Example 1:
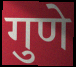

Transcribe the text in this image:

गुणे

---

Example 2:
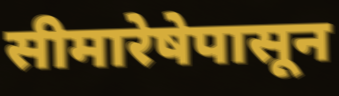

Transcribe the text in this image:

सीमारेषेपासून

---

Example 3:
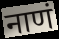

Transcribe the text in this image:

नाणं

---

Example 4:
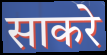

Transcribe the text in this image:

साकरे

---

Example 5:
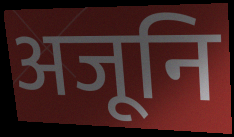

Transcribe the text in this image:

अजूनि